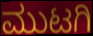
ಮುಟಗಿ